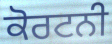
ਕੋਰਟਨੀ